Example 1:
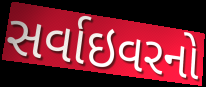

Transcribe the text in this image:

સર્વાઇવરનો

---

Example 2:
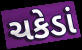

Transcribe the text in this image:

ચકેડાં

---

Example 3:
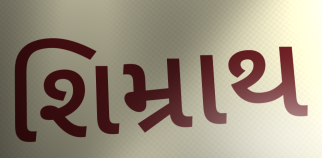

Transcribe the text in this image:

શિમ્રાથ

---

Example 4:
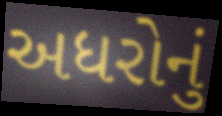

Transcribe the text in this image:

અધરોનું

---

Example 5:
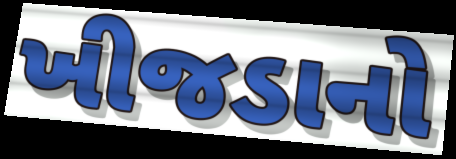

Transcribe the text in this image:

ખીજડાનો